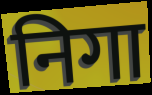
निगा